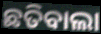
ଛତିବାଲା